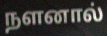
நளனால்